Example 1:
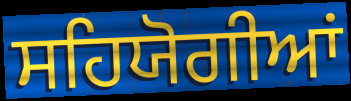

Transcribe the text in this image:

ਸਹਿਯੋਗੀਆਂ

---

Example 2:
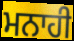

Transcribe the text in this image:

ਮਨਾਹੀ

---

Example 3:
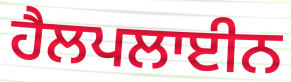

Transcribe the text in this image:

ਹੈਲਪਲਾਈਨ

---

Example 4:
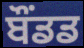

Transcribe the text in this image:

ਬੌਂਡਡ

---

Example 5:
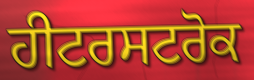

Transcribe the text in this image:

ਹੀਟਰਸਟਰੋਕ